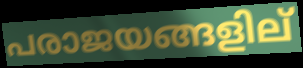
പരാജയങ്ങളില്